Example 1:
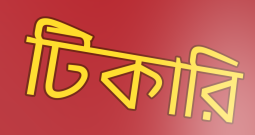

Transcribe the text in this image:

টিকারি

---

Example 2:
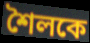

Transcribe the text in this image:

শৈলকে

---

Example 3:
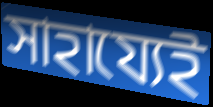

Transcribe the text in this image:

সাহায্যেই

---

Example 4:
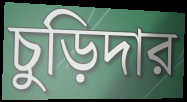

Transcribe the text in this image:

চুড়িদার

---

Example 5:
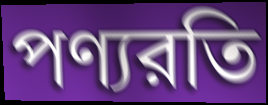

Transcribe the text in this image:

পণ্যরতি